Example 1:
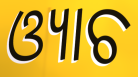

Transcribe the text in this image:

ଓ୍ୟାଚ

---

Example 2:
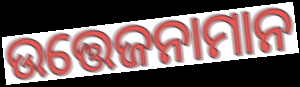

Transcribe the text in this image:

ଉତ୍ତେଜନାମାନ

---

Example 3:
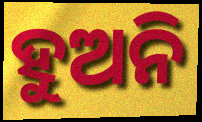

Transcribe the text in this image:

ହୁଅନି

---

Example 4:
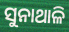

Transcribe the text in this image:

ସୁନାଥାଳି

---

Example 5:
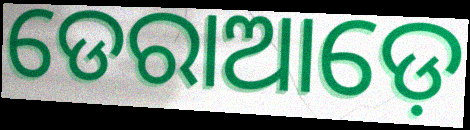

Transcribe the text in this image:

ଡେରାଆଡ଼େ